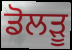
ਡੋਲੜੂ